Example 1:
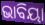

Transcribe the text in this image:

ଭାବିୟା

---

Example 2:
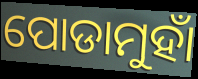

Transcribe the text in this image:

ପୋଡାମୁହାଁ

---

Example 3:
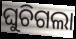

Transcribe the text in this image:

ଘୁଚିଗଲା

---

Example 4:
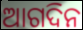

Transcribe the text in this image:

ଆଗଦିନ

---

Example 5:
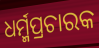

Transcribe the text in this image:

ଧର୍ମ୍ମପ୍ରଚାରକ